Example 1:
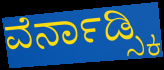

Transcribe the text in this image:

ವೆರ್ನಾಡ್ಸ್ಕಿ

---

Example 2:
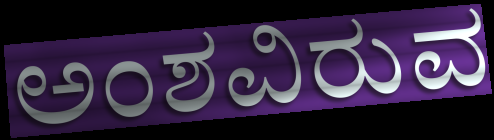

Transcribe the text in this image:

ಅಂಶವಿರುವ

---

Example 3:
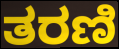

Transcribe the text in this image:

ತರಣಿ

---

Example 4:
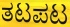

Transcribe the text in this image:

ತಟಪಟ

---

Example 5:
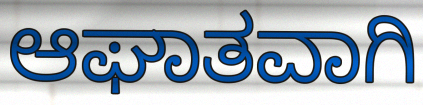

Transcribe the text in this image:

ಆಘಾತವಾಗಿ